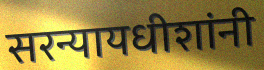
सरन्यायधीशांनी